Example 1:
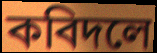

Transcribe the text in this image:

কবিদলে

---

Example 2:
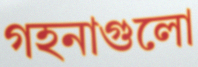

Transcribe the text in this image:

গহনাগুলো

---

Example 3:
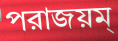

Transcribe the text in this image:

পরাজয়ম্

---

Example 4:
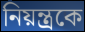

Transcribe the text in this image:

নিয়ন্ত্রকে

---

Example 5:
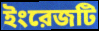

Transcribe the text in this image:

ইংরেজটি